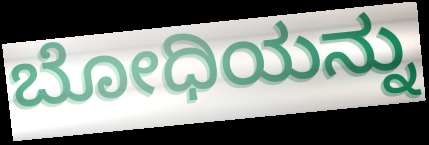
ಬೋಧಿಯನ್ನು